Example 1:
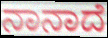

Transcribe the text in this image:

ನಾನಾದೆ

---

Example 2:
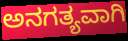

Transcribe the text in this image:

ಅನಗತ್ಯವಾಗಿ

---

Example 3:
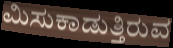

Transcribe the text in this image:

ಮಿಸುಕಾಡುತ್ತಿರುವ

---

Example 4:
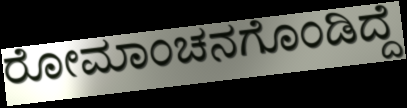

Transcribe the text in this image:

ರೋಮಾಂಚನಗೊಂಡಿದ್ದೆ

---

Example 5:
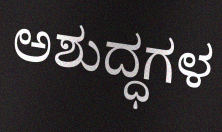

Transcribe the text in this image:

ಅಶುದ್ಧಗಳ